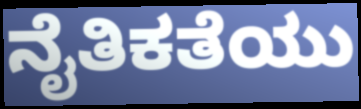
ನೈತಿಕತೆಯು